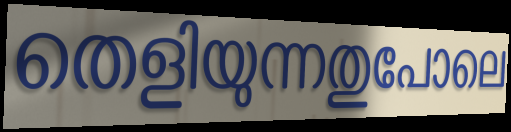
തെളിയുന്നതുപോലെ